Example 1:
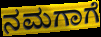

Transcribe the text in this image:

ನಮಗಾಗೆ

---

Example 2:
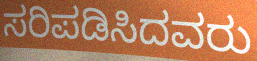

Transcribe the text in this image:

ಸರಿಪಡಿಸಿದವರು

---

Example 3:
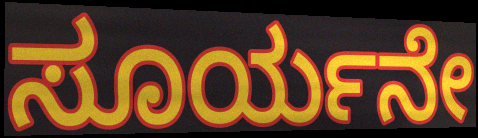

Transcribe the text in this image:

ಸೂರ್ಯನೇ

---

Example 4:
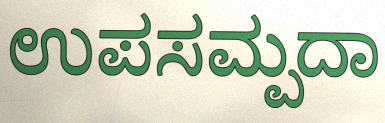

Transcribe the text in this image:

ಉಪಸಮ್ಪದಾ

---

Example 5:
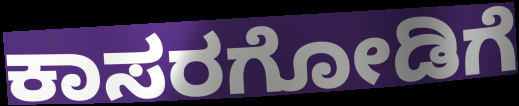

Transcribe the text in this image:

ಕಾಸರಗೋಡಿಗೆ